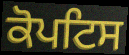
ਕੋਪਟਿਸ